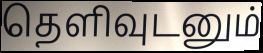
தெளிவுடனும்